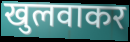
खुलवाकर